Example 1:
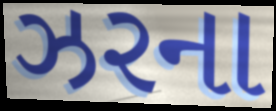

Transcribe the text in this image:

ઝરના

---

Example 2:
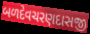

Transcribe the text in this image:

બળદેવચરણદાસજી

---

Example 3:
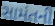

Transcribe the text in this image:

સામંતની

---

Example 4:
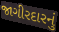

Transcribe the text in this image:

જાગીરદારનું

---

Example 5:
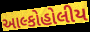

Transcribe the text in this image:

આલ્કોહોલીય